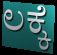
ಲಕ್ಕೆ